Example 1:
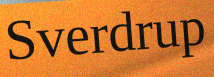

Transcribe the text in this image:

Sverdrup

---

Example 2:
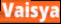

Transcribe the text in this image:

Vaisya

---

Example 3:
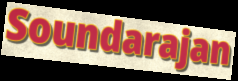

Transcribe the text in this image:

Soundarajan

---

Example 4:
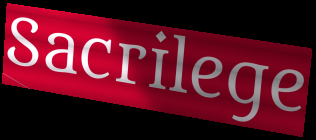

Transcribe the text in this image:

Sacrilege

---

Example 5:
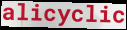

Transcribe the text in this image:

alicyclic